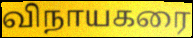
விநாயகரை